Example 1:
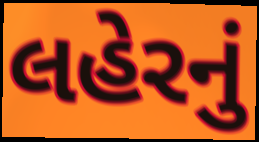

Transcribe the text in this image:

લહેરનું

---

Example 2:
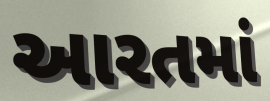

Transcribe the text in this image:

આરતમાં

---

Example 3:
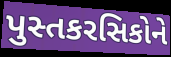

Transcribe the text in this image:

પુસ્તકરસિકોને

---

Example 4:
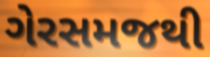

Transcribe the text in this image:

ગેરસમજથી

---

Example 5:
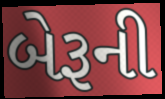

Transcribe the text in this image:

બેરૂની